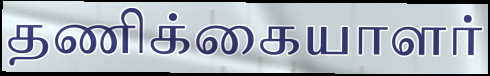
தணிக்கையாளர்